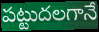
పట్టుదలగానే